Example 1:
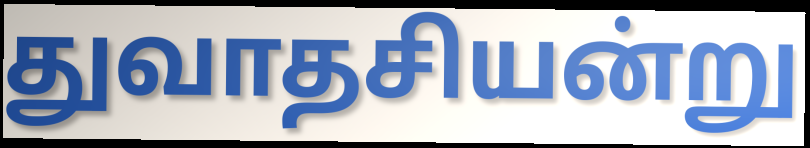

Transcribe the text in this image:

துவாதசியன்று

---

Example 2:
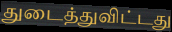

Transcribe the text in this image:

துடைத்துவிட்டது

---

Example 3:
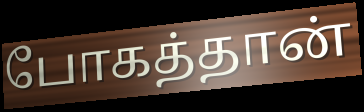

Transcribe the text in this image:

போகத்தான்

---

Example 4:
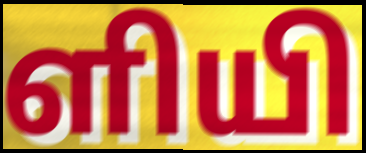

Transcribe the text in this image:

ளியி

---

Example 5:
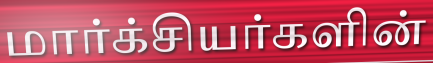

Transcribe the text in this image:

மார்க்சியர்களின்